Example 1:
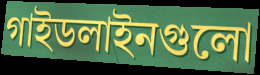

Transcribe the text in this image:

গাইডলাইনগুলো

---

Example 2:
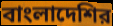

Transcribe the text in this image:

বাংলাদেশির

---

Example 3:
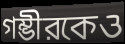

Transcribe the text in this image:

গম্ভীরকেও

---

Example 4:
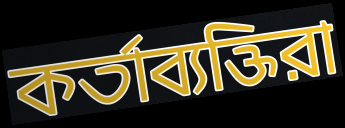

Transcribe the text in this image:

কর্তাব্যক্তিরা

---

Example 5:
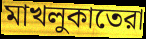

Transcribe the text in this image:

মাখলুকাতেরা